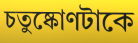
চতুষ্কোণটাকে